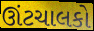
ઊંટચાલકો